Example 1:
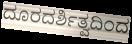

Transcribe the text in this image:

ದೂರದರ್ಶಿತ್ವದಿಂದ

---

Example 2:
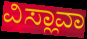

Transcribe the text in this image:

ವಿಸ್ಲಾವಾ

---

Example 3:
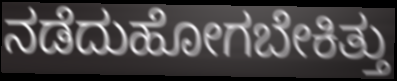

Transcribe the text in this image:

ನಡೆದುಹೋಗಬೇಕಿತ್ತು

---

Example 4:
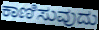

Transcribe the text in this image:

ಕಾಣಿಸುವುದು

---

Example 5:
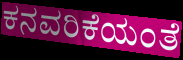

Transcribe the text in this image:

ಕನವರಿಕೆಯಂತೆ